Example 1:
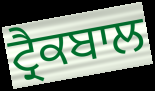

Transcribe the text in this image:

ਟ੍ਰੈਕਬਾਲ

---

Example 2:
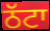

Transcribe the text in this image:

ਠੱਟਾ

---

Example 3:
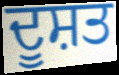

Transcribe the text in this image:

ਦੂਸ਼ਤ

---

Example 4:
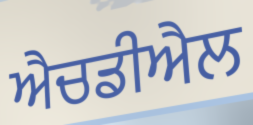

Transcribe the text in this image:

ਐਚਡੀਐਲ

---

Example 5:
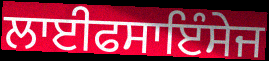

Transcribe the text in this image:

ਲਾਈਫਸਾਇੰਸੇਜ